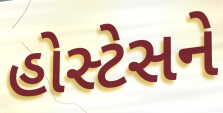
હોસ્ટેસને